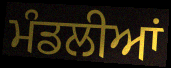
ਮੰਡਲੀਆਂ